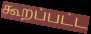
கூறப்பட்ட